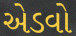
એડવો